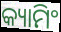
କ୍ୟାମିଂ